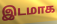
இடமாக